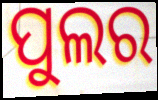
ପୁଲର